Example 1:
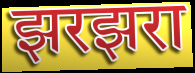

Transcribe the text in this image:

झरझरा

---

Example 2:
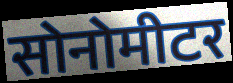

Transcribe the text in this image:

सोनोमीटर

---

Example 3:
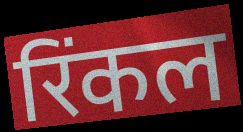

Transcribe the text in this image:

रिंकल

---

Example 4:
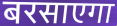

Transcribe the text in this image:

बरसाएगा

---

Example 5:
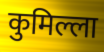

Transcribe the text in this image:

कुमिल्ला